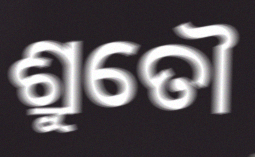
ଶ୍ରୁତୌ